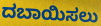
ದಬಾಯಿಸಲು